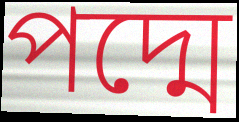
পদ্মে